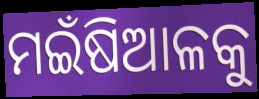
ମଇଁଷିଆଳକୁ